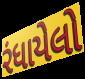
રંધાયેલો